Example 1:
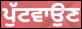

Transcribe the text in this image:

ਪੁੱਟਵਾਉਣ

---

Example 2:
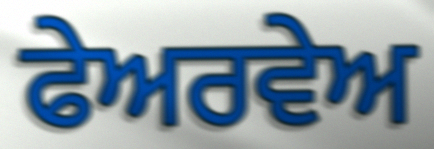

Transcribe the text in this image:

ਫੇਅਰਵੇਅ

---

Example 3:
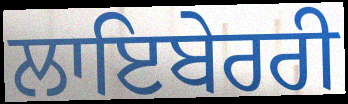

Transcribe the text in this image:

ਲਾਇਬੇਰਰੀ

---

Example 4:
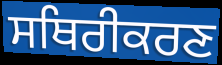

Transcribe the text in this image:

ਸਥਿਰੀਕਰਣ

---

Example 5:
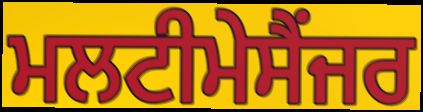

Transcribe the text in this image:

ਮਲਟੀਮੇਸੈਂਜਰ